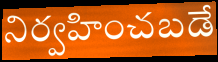
నిర్వహించబడే